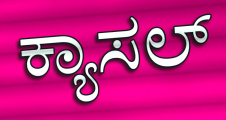
ಕ್ಯಾಸಲ್